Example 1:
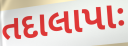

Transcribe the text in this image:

તદાલાપાઃ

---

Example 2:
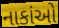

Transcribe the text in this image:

નાકાંઓ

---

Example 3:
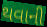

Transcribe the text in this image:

થવાની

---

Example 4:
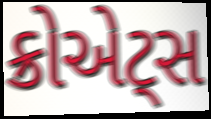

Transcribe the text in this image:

ક્રોએટ્સ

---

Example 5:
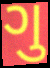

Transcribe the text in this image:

ગુ